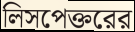
লিসপেক্তরের